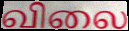
விலை